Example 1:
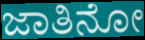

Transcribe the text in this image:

ಜಾತಿನೋ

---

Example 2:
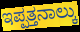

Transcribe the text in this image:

ಇಪ್ಪತ್ತನಾಲ್ಕು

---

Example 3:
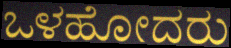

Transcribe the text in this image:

ಒಳಹೋದರು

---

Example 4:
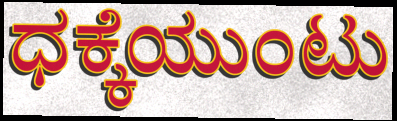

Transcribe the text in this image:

ಧಕ್ಕೆಯುಂಟು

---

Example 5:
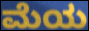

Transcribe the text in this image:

ಮೆಯ